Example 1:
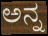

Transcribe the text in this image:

ಅನ್ನ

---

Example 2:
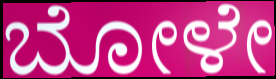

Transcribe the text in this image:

ಬೋಳೇ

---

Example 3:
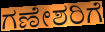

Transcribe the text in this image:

ಗಣೇಶರಿಗೆ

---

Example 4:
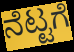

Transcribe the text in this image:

ನೆಟ್ಟಗೆ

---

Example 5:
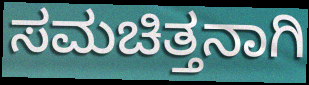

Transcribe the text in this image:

ಸಮಚಿತ್ತನಾಗಿ